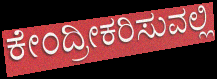
ಕೇಂದ್ರೀಕರಿಸುವಲ್ಲಿ